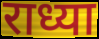
राध्या